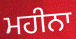
ਮਹੀਨਾ